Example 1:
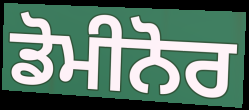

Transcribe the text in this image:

ਡੋਮੀਨੋਰ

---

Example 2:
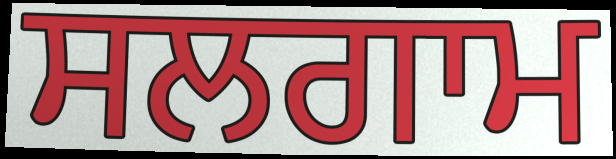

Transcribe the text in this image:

ਸਲਗਾਮ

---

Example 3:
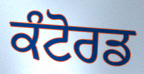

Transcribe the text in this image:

ਕੰਟੋਰਡ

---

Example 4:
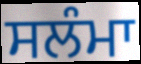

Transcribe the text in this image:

ਸਲੰਮਾ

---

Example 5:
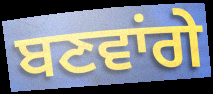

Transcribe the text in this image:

ਬਣਵਾਂਗੇ